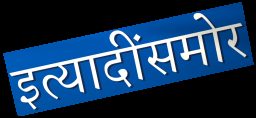
इत्यादींसमोर